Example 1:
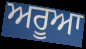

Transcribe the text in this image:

ਅਰੂਆ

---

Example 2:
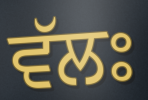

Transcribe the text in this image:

ਵੱਲਃ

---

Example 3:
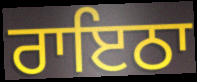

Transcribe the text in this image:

ਰਾਇਠਾ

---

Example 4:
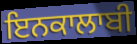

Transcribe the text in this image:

ਇਨਕਾਲਾਬੀ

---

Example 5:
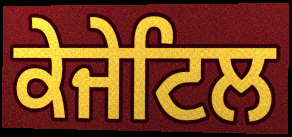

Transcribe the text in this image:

ਕੇਜੇਟਿਲ